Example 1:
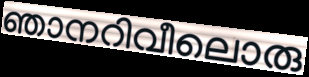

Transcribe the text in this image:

ഞാനറിവീലൊരു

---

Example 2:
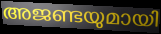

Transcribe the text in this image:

അജണ്ടയുമായി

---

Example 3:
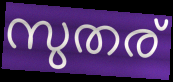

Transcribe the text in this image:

സുതര്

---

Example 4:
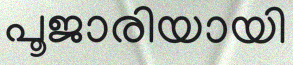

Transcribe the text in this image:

പൂജാരിയായി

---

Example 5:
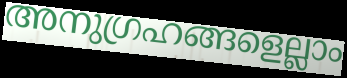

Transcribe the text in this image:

അനുഗ്രഹങ്ങളെല്ലാം